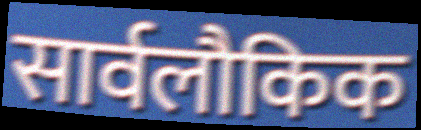
सार्वलौकिक